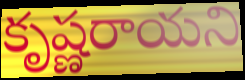
కృష్ణరాయని